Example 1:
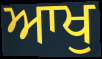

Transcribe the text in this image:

ਆਖੁ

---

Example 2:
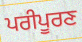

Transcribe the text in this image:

ਪਰੀਪੂਰਣ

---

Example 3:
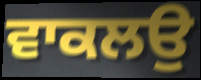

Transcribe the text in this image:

ਵਾਕਲਉ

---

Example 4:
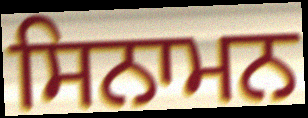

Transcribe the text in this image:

ਸਿਨਾਮਨ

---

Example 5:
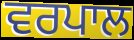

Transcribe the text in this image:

ਵਰਪਾਲ